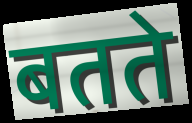
बतते